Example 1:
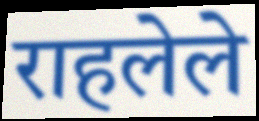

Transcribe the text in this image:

राहलेले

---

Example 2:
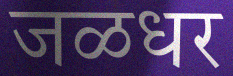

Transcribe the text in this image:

जळधर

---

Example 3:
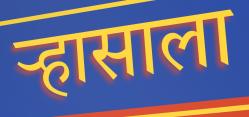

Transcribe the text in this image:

ऱ्हासाला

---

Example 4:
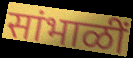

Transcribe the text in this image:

सांभाळीं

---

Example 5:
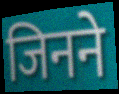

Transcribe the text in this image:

जिनने